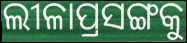
ଲୀଳାପ୍ରସଙ୍ଗକୁ